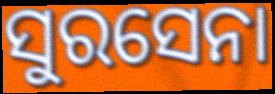
ସୁରସେନା